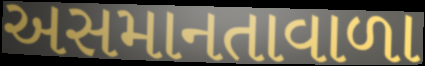
અસમાનતાવાળા